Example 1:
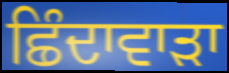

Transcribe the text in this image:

ਛਿੰਦਾਵਾੜਾ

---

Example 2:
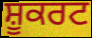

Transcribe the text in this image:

ਸ਼ੂਕਰਟ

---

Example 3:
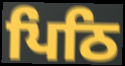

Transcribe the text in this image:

ਪਿਠਿ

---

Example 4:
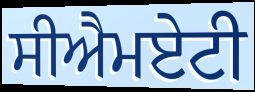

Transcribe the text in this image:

ਸੀਐਮਏਟੀ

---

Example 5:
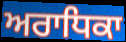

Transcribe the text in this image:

ਅਰਾਧਿਕਾ